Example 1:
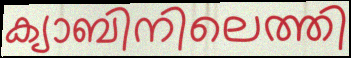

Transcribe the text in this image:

ക്യാബിനിലെത്തി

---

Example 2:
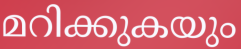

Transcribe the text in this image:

മറിക്കുകയും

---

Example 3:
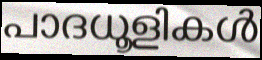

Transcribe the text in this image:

പാദധൂളികൾ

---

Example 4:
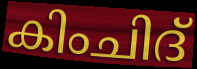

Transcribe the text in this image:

കിംചിദ്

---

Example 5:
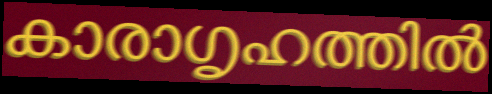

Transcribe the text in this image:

കാരാഗൃഹത്തിൽ